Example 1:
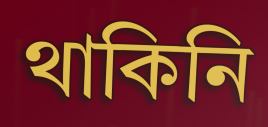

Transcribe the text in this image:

থাকিনি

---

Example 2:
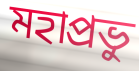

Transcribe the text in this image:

মহাপ্রভু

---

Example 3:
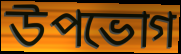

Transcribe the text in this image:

উপভোগ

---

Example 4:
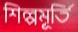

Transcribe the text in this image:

শিল্পমূর্তি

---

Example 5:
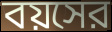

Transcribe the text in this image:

বয়সের